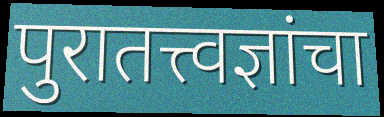
पुरातत्त्वज्ञांचा